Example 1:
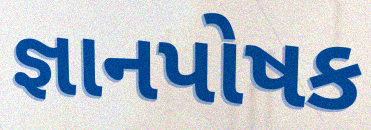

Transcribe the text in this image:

જ્ઞાનપોષક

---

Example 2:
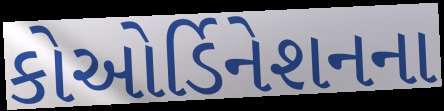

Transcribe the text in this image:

કોઓર્ડિનેશનના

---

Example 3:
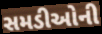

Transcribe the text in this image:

સમડીઓની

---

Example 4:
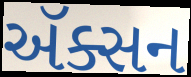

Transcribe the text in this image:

ઍક્સન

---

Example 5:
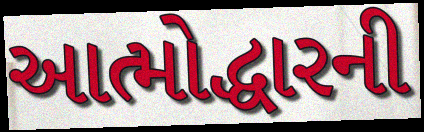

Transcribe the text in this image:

આત્મોદ્ધારની